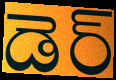
డెర్